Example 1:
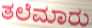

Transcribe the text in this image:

ತಲೆಮಾರು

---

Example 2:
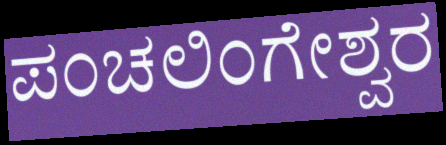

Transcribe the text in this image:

ಪಂಚಲಿಂಗೇಶ್ವರ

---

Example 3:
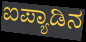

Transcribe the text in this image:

ಐಪ್ಯಾಡಿನ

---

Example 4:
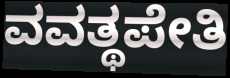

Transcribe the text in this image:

ವವತ್ಥಪೇತಿ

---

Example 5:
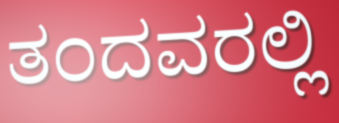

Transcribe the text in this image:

ತಂದವರಲ್ಲಿ